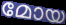
മോയ